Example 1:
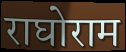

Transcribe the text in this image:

राघोराम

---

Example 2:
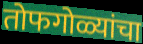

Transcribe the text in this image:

तोफगोळ्यांचा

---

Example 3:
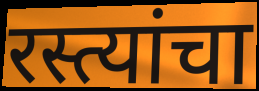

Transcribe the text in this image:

रस्त्यांचा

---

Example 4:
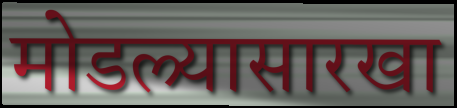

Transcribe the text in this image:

मोडल्यासारखा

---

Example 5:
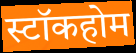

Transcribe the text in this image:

स्टॉकहोम